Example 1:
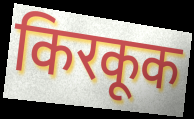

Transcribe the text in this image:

किरकूक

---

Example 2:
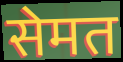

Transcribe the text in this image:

सेमत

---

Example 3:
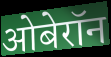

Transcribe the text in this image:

ओबेरॉन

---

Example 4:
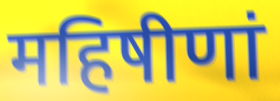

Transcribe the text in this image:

महिषीणां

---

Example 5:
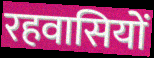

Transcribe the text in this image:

रहवासियों